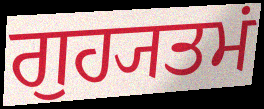
ਗੁਹ੍ਯਤਮਂ